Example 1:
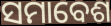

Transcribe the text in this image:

ସମାବେଶ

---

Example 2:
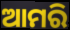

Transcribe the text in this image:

ଆମରି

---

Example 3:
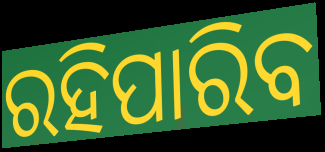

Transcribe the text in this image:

ରହିପାରିବ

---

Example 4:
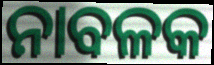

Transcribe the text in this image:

ନାବଳକ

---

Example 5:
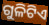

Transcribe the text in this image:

ଗୁଳିଟିଏ